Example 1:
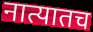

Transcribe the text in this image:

नात्यातच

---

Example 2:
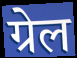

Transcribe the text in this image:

ग्रेल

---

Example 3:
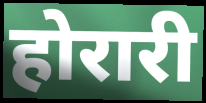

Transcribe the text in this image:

होरारी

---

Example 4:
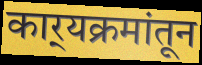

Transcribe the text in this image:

कार्यक्रमांतून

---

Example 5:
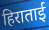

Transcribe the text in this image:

हिराताई